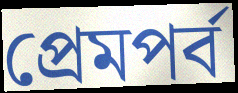
প্রেমপর্ব